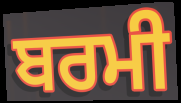
ਬਰਮੀ